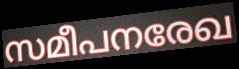
സമീപനരേഖ